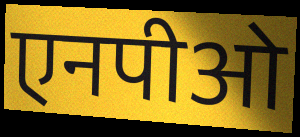
एनपीओ